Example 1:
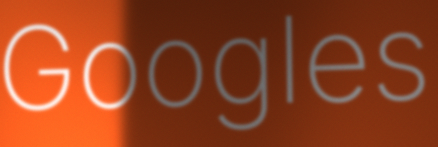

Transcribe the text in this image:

Googles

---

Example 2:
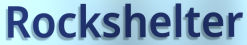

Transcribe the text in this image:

Rockshelter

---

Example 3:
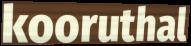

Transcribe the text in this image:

kooruthal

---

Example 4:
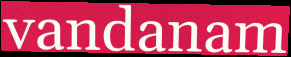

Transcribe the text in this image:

vandanam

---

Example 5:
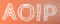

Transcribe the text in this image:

AOIP